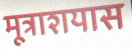
मूत्राशयास